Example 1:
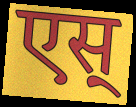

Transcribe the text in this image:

एस्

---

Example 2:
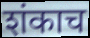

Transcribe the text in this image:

शंकाच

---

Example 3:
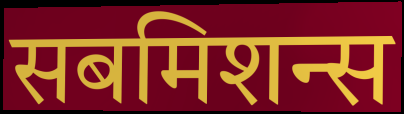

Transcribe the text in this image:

सबमिशन्स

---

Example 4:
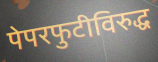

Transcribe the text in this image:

पेपरफुटीविरुद्ध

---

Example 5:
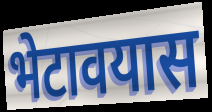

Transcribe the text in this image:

भेटावयास